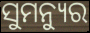
ସୁମନ୍ୟୁର